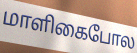
மாளிகைபோல